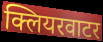
क्लियरवाटर